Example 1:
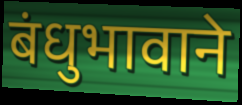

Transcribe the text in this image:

बंधुभावाने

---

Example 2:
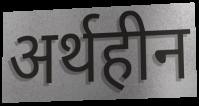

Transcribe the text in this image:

अर्थहीन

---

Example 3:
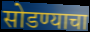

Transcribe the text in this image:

सोडण्याचा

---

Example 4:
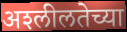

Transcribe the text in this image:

अश्‍लीलतेच्या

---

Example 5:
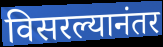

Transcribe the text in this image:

विसरल्यानंतर